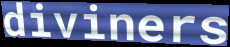
diviners